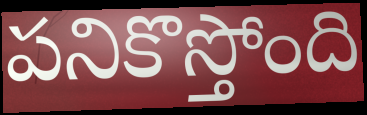
పనికొస్తోంది